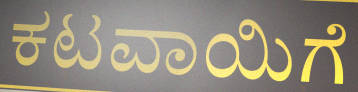
ಕಟವಾಯಿಗೆ